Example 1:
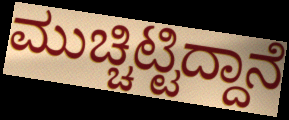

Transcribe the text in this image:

ಮುಚ್ಚಿಟ್ಟಿದ್ದಾನೆ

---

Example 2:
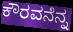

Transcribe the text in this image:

ಕೌರವನೆನ್ನ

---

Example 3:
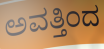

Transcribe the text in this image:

ಅವತ್ತಿಂದ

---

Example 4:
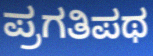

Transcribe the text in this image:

ಪ್ರಗತಿಪಥ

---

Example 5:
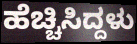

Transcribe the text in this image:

ಹೆಚ್ಚಿಸಿದ್ದಳು